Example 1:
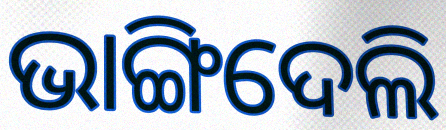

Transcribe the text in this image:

ଭାଙ୍ଗିଦେଲି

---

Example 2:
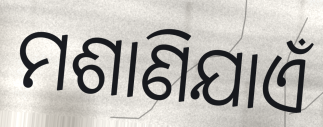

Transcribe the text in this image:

ମଶାଣିଯାଏଁ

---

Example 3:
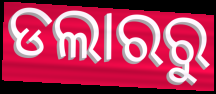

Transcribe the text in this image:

ଡଲାରରୁ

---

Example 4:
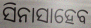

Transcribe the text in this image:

ସିନାସାହେବ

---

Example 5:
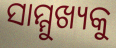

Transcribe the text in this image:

ସାମ୍ମୁଖ୍ୟକୁ